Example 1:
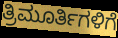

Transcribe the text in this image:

ತ್ರಿಮೂರ್ತಿಗಳಿಗೆ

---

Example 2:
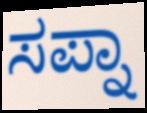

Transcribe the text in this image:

ಸಪ್ನಾ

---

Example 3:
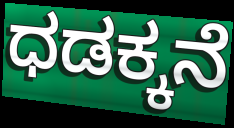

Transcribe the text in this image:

ಧಡಕ್ಕನೆ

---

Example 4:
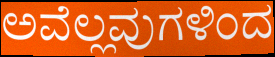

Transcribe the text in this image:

ಅವೆಲ್ಲವುಗಳಿಂದ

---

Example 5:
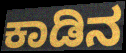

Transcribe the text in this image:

ಕಾಡಿನ